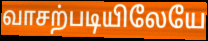
வாசற்படியிலேயே